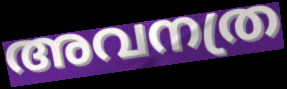
അവനത്ര